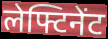
लेफ्टिनेंट